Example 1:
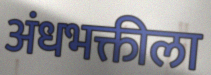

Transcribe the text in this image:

अंधभक्तीला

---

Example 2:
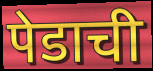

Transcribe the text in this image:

पेडाची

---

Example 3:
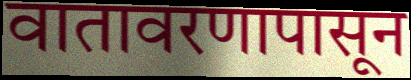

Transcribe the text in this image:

वातावरणापासून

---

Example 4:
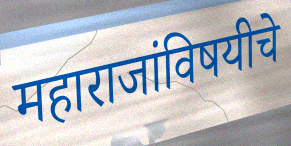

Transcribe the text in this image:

महाराजांविषयीचे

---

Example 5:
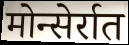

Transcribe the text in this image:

मोन्सेर्रात